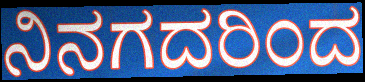
ನಿನಗದರಿಂದ